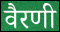
वैरणी